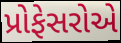
પ્રોફેસરોએ